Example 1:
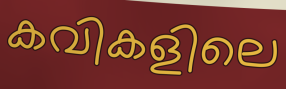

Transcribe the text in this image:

കവികളിലെ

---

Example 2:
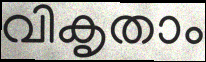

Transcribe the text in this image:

വികൃതാം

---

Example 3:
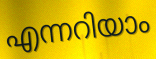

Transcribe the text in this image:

എന്നറിയാം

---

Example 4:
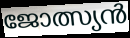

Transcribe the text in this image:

ജോത്സ്യൻ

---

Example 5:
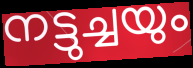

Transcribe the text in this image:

നട്ടുച്ചയും